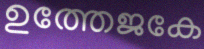
ഉത്തേജകേ